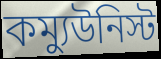
কম্যুউনিস্ট